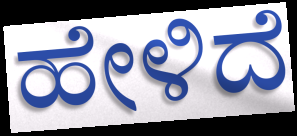
ಹೇಳಿದೆ